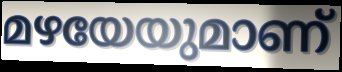
മഴയേയുമാണ്